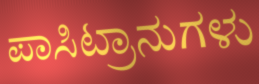
ಪಾಸಿಟ್ರಾನುಗಳು